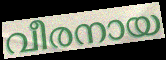
വീരനായ